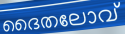
ദൈതലോവ്